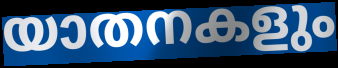
യാതനകളും